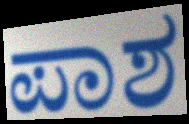
ಪಾಶ